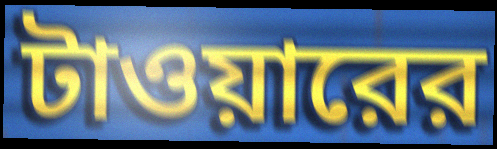
টাওয়ারের